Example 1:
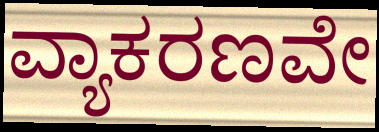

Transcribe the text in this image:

ವ್ಯಾಕರಣವೇ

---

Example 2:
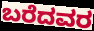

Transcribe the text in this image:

ಬರೆದವರ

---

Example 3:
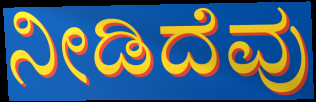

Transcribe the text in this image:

ನೀಡಿದೆವು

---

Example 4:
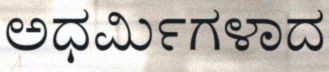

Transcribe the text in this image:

ಅಧರ್ಮಿಗಳಾದ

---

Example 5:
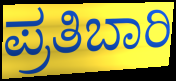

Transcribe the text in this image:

ಪ್ರತಿಬಾರಿ